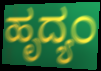
ಹೃದ್ಯಂ